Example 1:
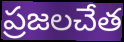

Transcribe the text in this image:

ప్రజలచేత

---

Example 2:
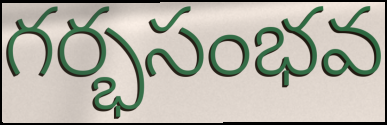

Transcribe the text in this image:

గర్భసంభవ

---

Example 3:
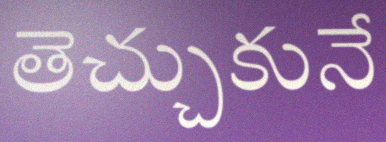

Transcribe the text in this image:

తెచ్చుకునే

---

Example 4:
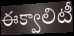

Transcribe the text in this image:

ఈక్వాలిటీ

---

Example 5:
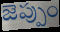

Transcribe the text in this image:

జెప్పుం